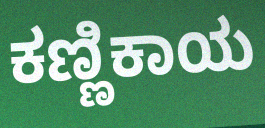
ಕಣ್ಣಿಕಾಯ